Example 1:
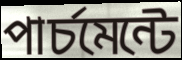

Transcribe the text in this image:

পার্চমেন্টে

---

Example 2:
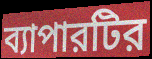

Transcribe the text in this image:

ব্যাপারটির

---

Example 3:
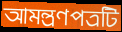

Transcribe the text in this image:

আমন্ত্রণপত্রটি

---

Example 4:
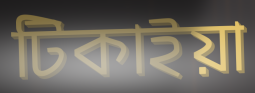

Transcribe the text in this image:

টিকাইয়া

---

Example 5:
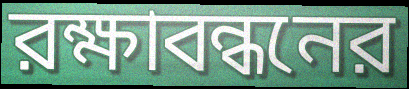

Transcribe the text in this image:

রক্ষাবন্ধনের